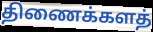
திணைக்களத்